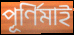
পূৰ্ণিমাই